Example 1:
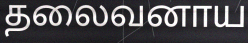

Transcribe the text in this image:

தலைவனாய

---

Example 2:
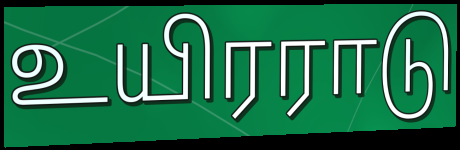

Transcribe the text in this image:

உயிரராடு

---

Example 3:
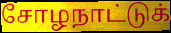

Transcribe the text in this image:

சோழநாட்டுக்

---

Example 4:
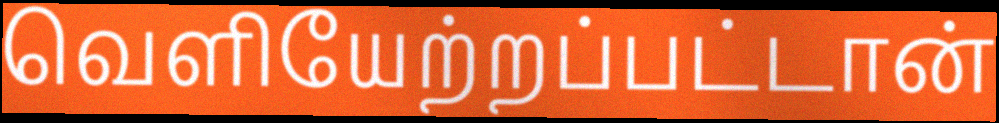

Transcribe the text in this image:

வெளியேற்றப்பட்டான்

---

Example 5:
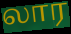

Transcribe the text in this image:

லார